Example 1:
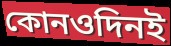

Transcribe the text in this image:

কোনওদিনই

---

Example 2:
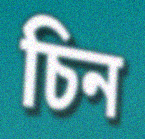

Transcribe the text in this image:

চিন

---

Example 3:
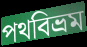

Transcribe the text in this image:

পথবিভ্রম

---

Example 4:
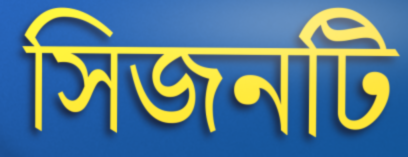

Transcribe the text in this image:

সিজনটি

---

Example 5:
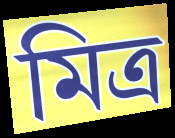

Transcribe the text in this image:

মিত্র